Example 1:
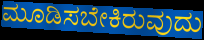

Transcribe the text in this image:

ಮೂಡಿಸಬೇಕಿರುವುದು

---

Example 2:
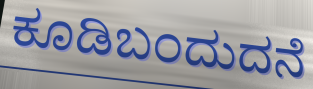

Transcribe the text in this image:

ಕೂಡಿಬಂದುದನೆ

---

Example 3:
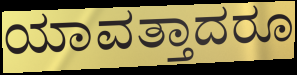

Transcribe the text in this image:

ಯಾವತ್ತಾದರೂ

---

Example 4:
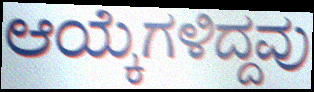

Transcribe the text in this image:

ಆಯ್ಕೆಗಳಿದ್ದವು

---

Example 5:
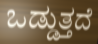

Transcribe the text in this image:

ಒಡ್ಡುತ್ತದೆ